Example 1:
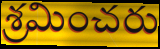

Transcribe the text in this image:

శ్రమించరు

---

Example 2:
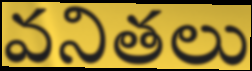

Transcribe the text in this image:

వనితలు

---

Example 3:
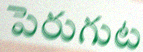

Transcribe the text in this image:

పెరుగుట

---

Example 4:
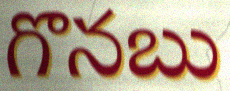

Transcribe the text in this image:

గొనబు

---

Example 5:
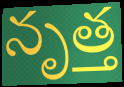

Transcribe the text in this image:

నృత్త